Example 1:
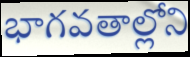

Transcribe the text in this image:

భాగవతాల్లోని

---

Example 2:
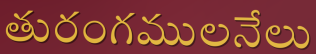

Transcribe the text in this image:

తురంగములనేలు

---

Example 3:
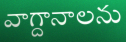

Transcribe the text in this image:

వాగ్దానాలను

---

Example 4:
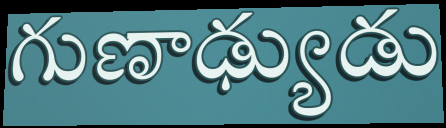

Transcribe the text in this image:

గుణాఢ్యుడు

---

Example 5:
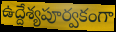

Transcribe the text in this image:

ఉద్దేశ్యపూర్వకంగా